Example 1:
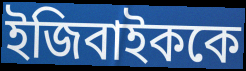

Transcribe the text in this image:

ইজিবাইককে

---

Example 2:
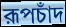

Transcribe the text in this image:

রূপচাঁদ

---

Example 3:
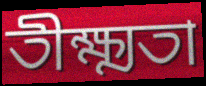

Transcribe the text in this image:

তীক্ষ্মতা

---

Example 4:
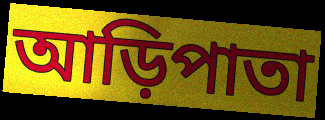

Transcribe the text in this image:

আড়িপাতা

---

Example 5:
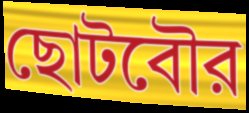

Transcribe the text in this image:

ছোটবৌর